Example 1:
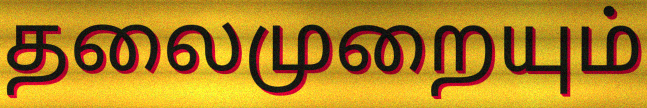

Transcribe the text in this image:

தலைமுறையும்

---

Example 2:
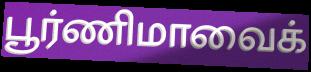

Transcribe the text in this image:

பூர்ணிமாவைக்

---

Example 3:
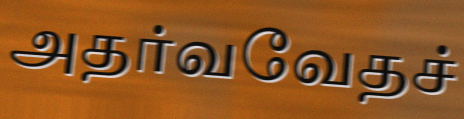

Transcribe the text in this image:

அதர்வவேதச்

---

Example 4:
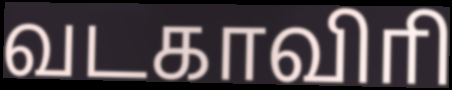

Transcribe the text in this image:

வடகாவிரி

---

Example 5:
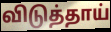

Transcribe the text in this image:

விடுத்தாய்